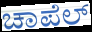
ಚಾಪೆಲ್